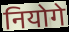
नियोगे